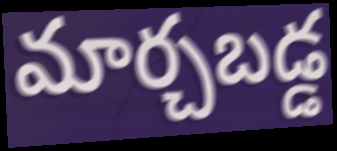
మార్చబడ్డ